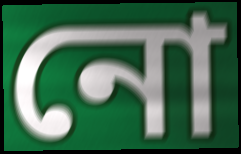
নো